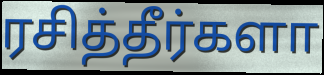
ரசித்தீர்களா